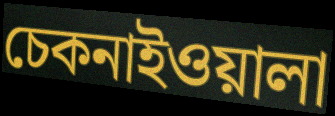
চেকনাইওয়ালা